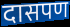
दासपण